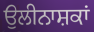
ਉਲੀਨਾਸ਼ਕਾਂ